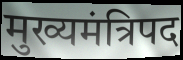
मुख्यमंत्रिपद